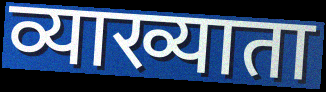
व्याख्याता